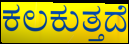
ಕಲಕುತ್ತದೆ